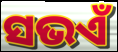
ସଭଏଁ